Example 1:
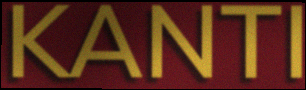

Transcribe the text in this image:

KANTI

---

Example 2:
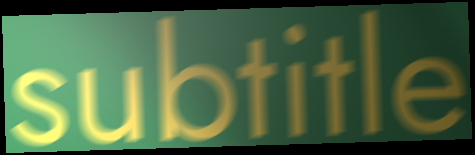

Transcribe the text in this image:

subtitle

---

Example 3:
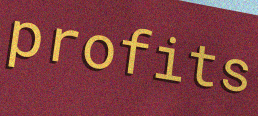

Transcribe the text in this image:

profits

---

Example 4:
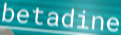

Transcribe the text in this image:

betadine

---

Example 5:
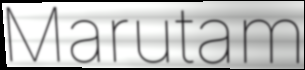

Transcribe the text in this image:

Marutam